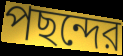
পছন্দের